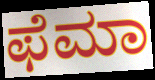
ಫೆಮಾ